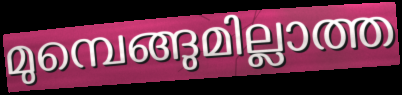
മുമ്പെങ്ങുമില്ലാത്ത